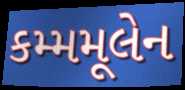
કમ્મમૂલેન